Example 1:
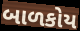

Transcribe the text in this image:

બાળકોય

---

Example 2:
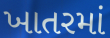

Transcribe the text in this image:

ખાતરમાં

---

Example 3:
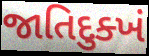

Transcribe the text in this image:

જાતિદુક્ખં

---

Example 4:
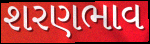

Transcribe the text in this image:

શરણભાવ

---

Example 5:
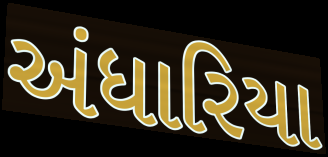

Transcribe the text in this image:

અંધારિયા